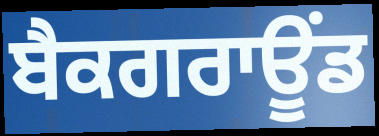
ਬੈਕਗਰਾਊਂਡ